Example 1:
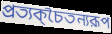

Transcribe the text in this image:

প্রত্যক্‌চৈতন্যরূপ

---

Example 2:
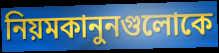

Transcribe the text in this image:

নিয়মকানুনগুলোকে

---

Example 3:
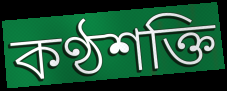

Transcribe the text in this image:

কণ্ঠশক্তি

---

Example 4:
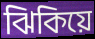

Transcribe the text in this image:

ঝিকিয়ে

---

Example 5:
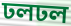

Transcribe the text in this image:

ঢলঢল